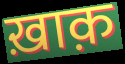
ख़ाक़